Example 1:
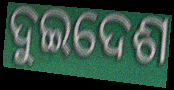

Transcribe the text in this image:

ଦୁଇଦେଶ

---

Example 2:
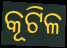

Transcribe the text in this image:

କୂଟିଳ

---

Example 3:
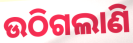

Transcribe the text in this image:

ଉଠିଗଲାଣି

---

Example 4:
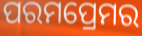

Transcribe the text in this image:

ପରମପ୍ରେମର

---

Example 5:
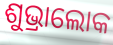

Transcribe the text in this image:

ଶୁଭ୍ରାଲୋକ